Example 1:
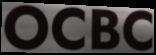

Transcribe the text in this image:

OCBC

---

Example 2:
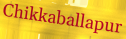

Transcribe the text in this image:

Chikkaballapur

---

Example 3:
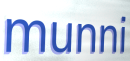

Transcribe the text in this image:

munni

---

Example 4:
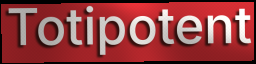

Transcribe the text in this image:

Totipotent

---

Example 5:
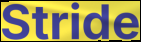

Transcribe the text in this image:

Stride